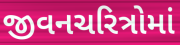
જીવનચરિત્રોમાં